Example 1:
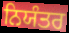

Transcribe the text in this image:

ਨਿਯੰਤਰ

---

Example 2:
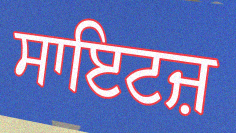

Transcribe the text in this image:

ਸਾਇਟਜ਼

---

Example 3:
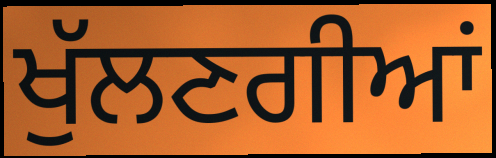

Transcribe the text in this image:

ਖੁੱਲਣਗੀਆਂ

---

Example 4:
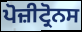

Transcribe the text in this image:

ਪੋਜ਼ੀਟ੍ਰੋਨਸ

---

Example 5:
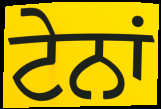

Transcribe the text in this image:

ਟੇਨਾਂ